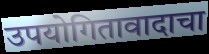
उपयोगितावादाचा